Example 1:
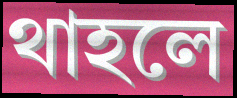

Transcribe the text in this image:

থাহলে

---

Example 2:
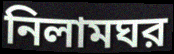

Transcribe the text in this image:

নিলামঘর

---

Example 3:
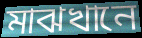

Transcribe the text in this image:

মাঝখানে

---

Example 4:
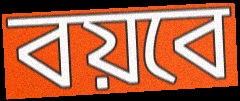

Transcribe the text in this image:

বয়বে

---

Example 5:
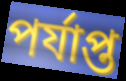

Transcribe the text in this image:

পর্যাপ্ত